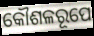
କୌଶଳରୂପେ